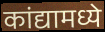
कांद्यामध्ये